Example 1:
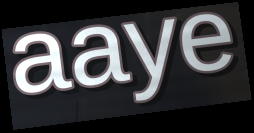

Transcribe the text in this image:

aaye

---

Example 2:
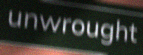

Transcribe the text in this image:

unwrought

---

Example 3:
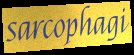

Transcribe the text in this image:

sarcophagi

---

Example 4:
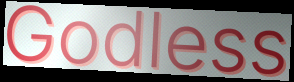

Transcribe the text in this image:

Godless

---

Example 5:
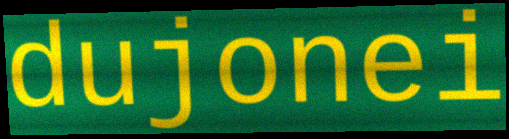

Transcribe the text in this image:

dujonei